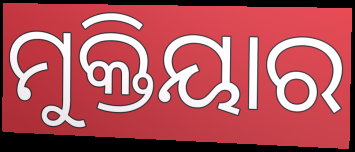
ମୁକ୍ତିୟାର